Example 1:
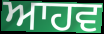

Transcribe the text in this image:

ਆਹਵ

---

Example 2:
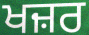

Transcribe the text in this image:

ਖਜ਼ਰ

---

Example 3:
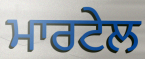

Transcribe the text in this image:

ਮਾਰਟੇਲ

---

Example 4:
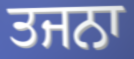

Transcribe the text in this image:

ਤਜਨਾ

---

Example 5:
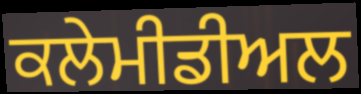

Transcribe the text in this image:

ਕਲੇਮੀਡੀਅਲ